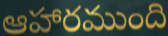
ఆహారముంది